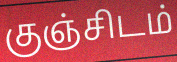
குஞ்சிடம்